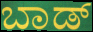
ಬಾಡ್